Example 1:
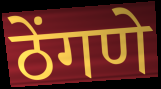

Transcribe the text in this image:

ठेंगणे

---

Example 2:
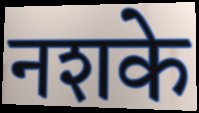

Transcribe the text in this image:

नशके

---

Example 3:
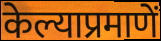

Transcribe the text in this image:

केल्याप्रमाणें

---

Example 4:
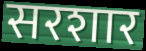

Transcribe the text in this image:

सरशार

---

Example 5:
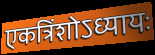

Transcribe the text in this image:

एकत्रिंशोऽध्यायः